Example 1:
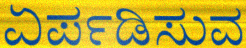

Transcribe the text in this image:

ಏರ್ಪಡಿಸುವ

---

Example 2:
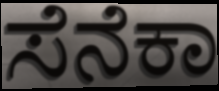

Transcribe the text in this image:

ಸೆನೆಕಾ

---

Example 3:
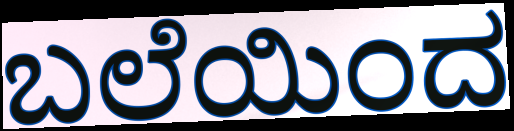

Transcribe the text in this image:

ಬಲೆಯಿಂದ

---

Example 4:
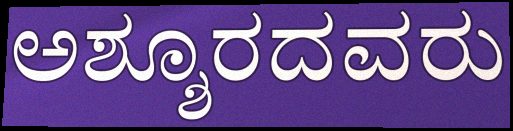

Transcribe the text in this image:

ಅಶ್ಶೂರದವರು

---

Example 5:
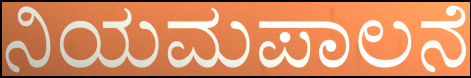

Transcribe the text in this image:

ನಿಯಮಪಾಲನೆ